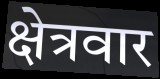
क्षेत्रवार